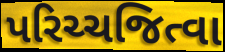
પરિચ્ચજિત્વા